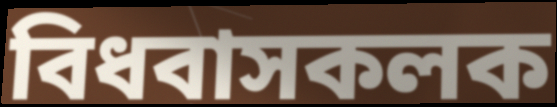
বিধবাসকলক